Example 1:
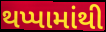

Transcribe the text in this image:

થપ્પામાંથી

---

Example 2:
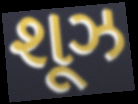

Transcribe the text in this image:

શૂઝ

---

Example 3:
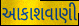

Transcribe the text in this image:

આકાશવાણી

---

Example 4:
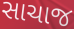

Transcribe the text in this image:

સાચાજ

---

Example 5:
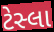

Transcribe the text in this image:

ટેસ્લા